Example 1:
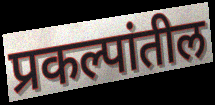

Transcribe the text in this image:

प्रकल्पांतील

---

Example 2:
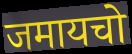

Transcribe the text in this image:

जमायचो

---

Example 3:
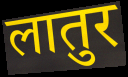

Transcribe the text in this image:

लातुर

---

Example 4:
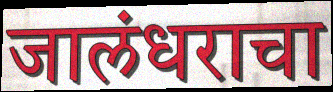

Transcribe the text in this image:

जालंधराचा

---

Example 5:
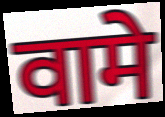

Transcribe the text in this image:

वामे